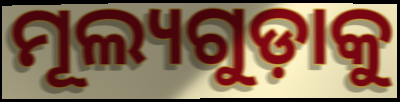
ମୂଲ୍ୟଗୁଡ଼ାକୁ